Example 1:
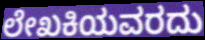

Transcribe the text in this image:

ಲೇಖಕಿಯವರದು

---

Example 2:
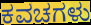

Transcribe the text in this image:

ಕವಚಗಳು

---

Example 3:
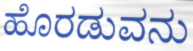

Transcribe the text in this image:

ಹೊರಡುವನು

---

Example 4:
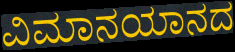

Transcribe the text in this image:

ವಿಮಾನಯಾನದ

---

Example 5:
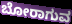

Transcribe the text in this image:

ಬೋರಾಗುವ